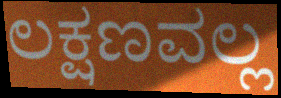
ಲಕ್ಷಣವಲ್ಲ